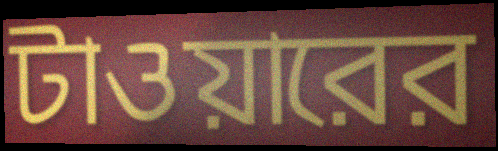
টাওয়ারের